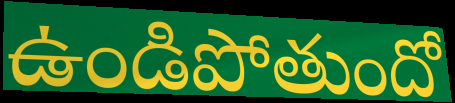
ఉండిపోతుందో